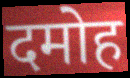
दमोह